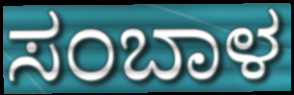
ಸಂಬಾಳ